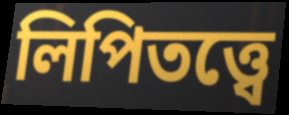
লিপিতত্ত্বে